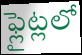
ఫ్లైట్లలో